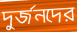
দুর্জনদের